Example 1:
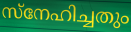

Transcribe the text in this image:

സ്നേഹിച്ചതും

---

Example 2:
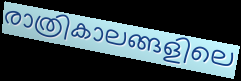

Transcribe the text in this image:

രാത്രികാലങ്ങളിലെ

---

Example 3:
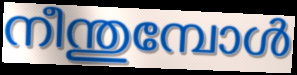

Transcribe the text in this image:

നീന്തുമ്പോൾ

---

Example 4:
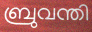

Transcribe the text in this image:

ബ്രുവന്തി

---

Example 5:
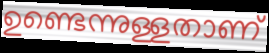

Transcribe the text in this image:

ഉണ്ടെന്നുള്ളതാണ്